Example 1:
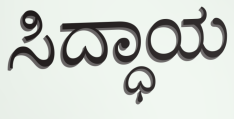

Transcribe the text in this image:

ಸಿದ್ಧಾಯ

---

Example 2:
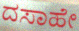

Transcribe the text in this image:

ದಸಾಹೇ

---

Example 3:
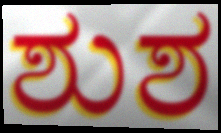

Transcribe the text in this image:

ಶುಶ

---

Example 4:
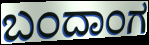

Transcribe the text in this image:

ಬಂದಾಂಗ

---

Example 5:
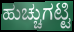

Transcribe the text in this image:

ಹುಚ್ಚುಗಟ್ಟಿ